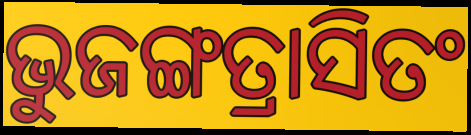
ଭୁଜଙ୍ଗତ୍ରାସିତଂ